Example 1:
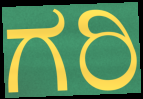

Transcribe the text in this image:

ಗರಿ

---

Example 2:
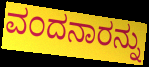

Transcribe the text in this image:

ವಂದನಾರನ್ನು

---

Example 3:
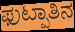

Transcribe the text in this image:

ಫುಟ್ಪಾತಿನ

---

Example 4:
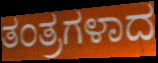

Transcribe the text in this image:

ತಂತ್ರಗಳಾದ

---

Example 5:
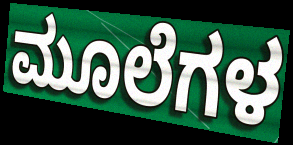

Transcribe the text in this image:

ಮೂಲೆಗಳ